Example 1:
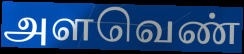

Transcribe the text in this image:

அளவெண்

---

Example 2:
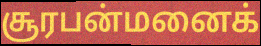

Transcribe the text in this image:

சூரபன்மனைக்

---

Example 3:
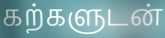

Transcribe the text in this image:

கற்களுடன்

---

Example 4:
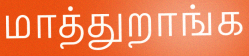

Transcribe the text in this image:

மாத்துறாங்க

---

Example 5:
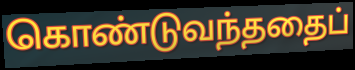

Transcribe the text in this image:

கொண்டுவந்ததைப்